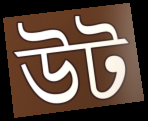
উট